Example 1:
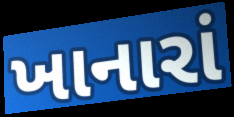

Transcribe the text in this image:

ખાનારાં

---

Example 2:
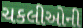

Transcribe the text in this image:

ચકલીઓની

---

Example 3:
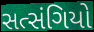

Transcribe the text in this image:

સત્સંગિયો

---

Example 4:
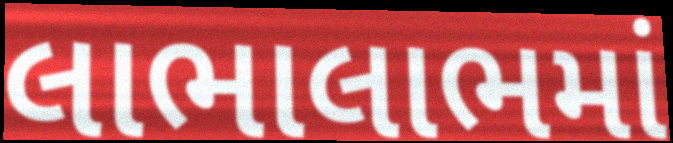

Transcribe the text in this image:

લાભાલાભમાં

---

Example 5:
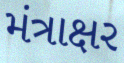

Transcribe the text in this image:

મંત્રાક્ષર